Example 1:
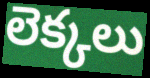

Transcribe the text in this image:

లెక్కలు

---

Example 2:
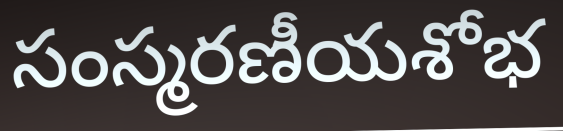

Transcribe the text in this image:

సంస్మరణీయశోభ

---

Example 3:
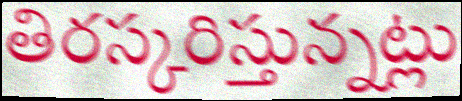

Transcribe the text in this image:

తిరస్కరిస్తున్నట్లు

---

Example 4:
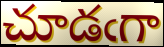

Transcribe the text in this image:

చూడఁగా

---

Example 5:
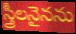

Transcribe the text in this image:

స్త్రీలనైనను